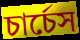
চার্চেস